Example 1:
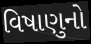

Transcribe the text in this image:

વિષાણુનો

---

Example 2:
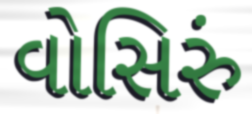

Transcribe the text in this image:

વોસિરું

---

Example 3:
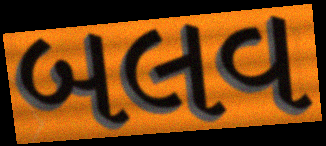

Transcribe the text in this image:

બલવ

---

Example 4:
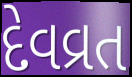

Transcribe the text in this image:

દેવવ્રત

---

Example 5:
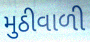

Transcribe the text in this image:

મુઠીવાળી